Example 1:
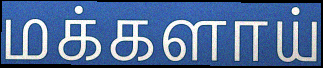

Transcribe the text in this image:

மக்களாய்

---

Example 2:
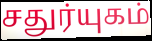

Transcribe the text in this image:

சதுர்யுகம்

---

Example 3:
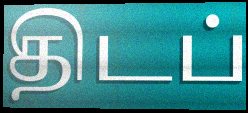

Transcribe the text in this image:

திடப்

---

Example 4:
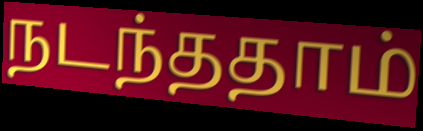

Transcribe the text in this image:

நடந்ததாம்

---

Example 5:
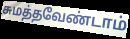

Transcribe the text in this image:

சுமத்தவேண்டாம்